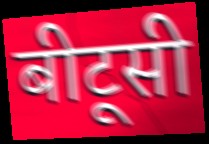
बीटूसी